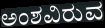
ಅಂಶವಿರುವ